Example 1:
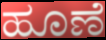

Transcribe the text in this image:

ಹೂಣೆ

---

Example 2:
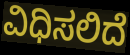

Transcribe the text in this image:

ವಿಧಿಸಲಿದೆ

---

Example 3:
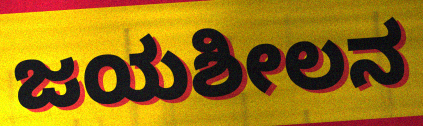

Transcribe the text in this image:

ಜಯಶೀಲನ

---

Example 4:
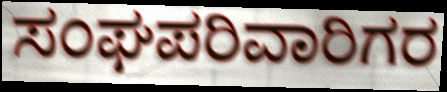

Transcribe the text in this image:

ಸಂಘಪರಿವಾರಿಗರ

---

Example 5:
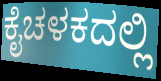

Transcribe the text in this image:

ಕೈಚಳಕದಲ್ಲಿ